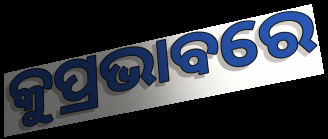
କୁପ୍ରଭାବରେ